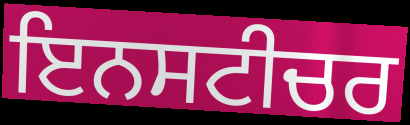
ਇਨਸਟੀਚਰ